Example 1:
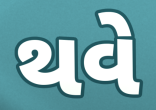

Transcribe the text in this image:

થવે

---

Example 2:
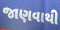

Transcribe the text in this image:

જાણવાથી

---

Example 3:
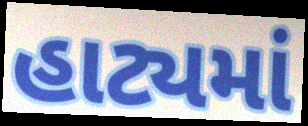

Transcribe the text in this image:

હાટ્યમાં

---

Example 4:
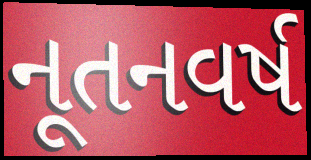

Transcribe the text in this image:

નૂતનવર્ષ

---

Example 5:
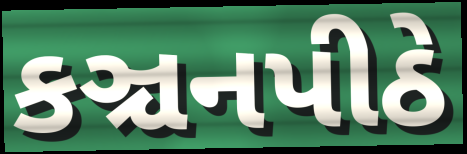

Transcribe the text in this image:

કઞ્ચનપીઠે